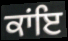
ਕਾਂਇ